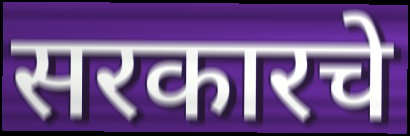
सरकारचे